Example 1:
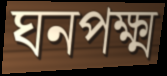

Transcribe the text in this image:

ঘনপক্ষ্ম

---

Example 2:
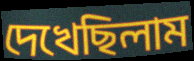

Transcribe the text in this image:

দেখেছিলাম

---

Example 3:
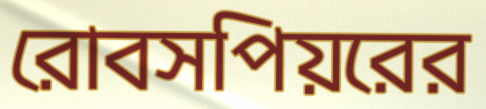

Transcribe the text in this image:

রোবসপিয়রের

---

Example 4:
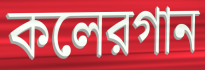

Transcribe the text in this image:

কলেরগান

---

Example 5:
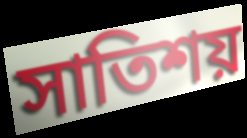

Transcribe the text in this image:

সাতিশয়